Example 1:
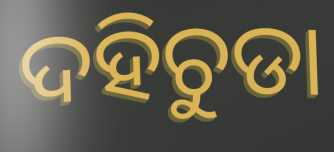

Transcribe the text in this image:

ଦହିଚୁଡା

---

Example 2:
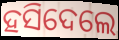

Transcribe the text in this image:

ହସିଦେଲେ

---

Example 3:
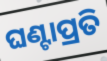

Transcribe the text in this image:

ଘଣ୍ଟାପ୍ରତି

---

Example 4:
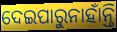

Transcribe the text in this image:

ଦେଇପାରୁନାହାଁନ୍ତି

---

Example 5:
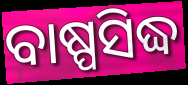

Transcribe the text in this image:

ବାଷ୍ପସିଦ୍ଧ